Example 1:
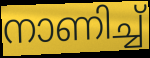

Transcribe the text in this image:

നാണിച്ച്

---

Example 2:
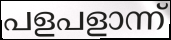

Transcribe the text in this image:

പളപളാന്ന്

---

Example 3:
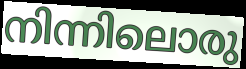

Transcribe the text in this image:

നിന്നിലൊരു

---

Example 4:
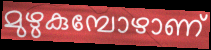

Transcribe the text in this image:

മുഴുകുമ്പോഴാണ്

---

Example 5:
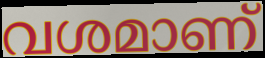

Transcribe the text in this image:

വശമാണ്